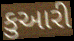
કુઆરી